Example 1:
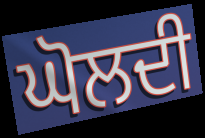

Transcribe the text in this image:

ਘੋਲਦੀ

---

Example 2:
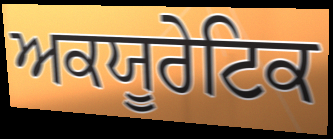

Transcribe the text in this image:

ਅਕਯੂਰੇਟਿਕ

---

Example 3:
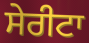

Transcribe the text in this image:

ਸੇਰੀਟਾ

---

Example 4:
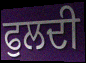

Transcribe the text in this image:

ਫੁਲਦੀ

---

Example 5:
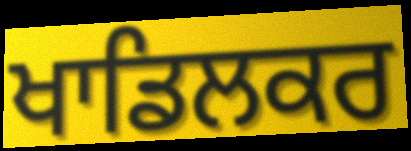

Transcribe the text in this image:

ਖਾਡਿਲਕਰ